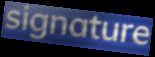
signature